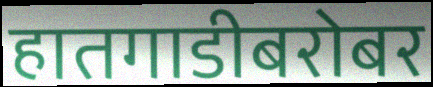
हातगाडीबरोबर